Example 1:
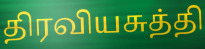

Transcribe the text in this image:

திரவியசுத்தி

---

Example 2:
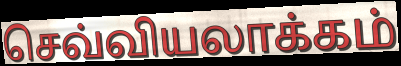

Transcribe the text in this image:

செவ்வியலாக்கம்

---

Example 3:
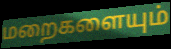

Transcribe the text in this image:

மறைகளையும்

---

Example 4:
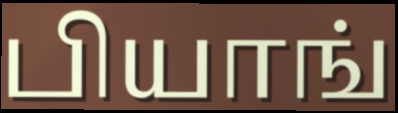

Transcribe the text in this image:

பியாங்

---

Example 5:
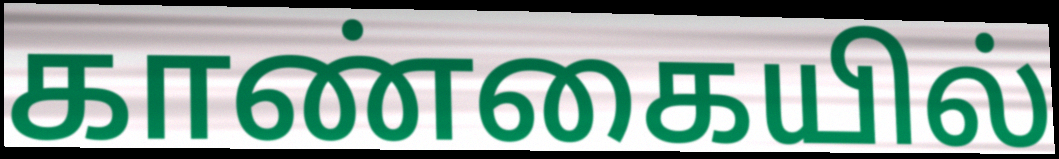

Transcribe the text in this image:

காண்கையில்